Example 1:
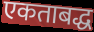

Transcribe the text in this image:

एकताबद्ध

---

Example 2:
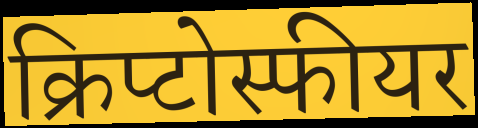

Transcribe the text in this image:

क्रिप्टोस्फीयर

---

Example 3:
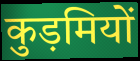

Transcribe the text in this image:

कुड़मियों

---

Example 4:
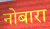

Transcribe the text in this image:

नोबारा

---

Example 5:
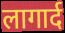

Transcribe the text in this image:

लागार्द